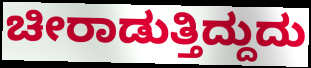
ಚೀರಾಡುತ್ತಿದ್ದುದು